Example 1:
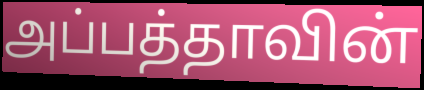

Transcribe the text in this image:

அப்பத்தாவின்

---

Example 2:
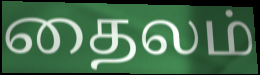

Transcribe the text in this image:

தைலம்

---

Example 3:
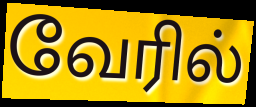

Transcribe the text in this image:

வேரில்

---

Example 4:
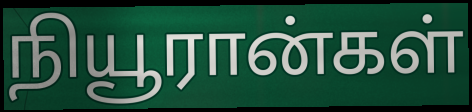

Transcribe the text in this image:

நியூரான்கள்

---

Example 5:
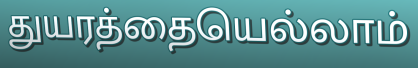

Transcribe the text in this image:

துயரத்தையெல்லாம்